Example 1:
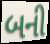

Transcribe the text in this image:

બની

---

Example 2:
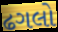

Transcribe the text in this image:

ઢગલો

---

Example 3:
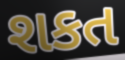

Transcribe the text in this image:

શકત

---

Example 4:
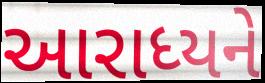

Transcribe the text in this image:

આરાધ્યને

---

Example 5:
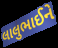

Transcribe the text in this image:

લાલુભાઈને